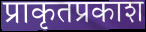
प्राकृतप्रकाश